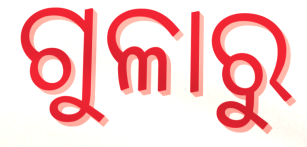
ଗୁଳାରୁ